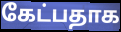
கேட்பதாக